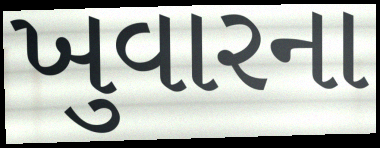
ખુવારના